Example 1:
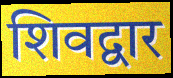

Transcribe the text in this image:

शिवद्वार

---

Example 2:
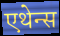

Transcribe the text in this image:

एथेन्स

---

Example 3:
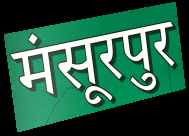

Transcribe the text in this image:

मंसूरपुर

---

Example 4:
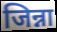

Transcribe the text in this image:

जिन्ना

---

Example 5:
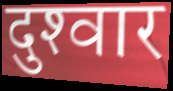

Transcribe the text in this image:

दुश्‍वार